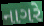
નાગરે